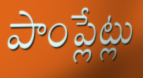
పాంప్లేట్లు